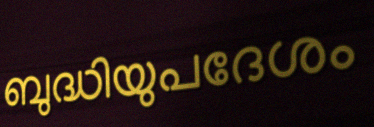
ബുദ്ധിയുപദേശം